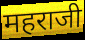
महराजी